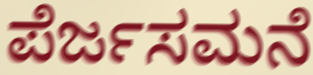
ಪೆರ್ಜಸಮನೆ